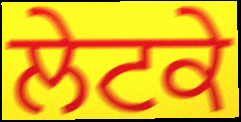
ਲੇਟਕੇ